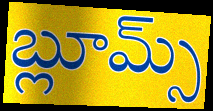
బ్లూమ్స్